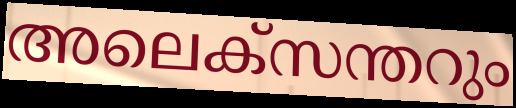
അലെക്സന്തറും